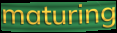
maturing